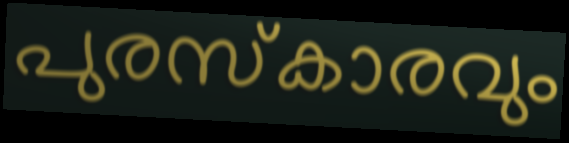
പുരസ്കാരവും